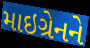
માઇગ્રેનને